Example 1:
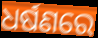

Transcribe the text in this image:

ଧର୍ଷଣରେ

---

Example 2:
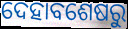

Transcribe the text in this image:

ଦେହାବଶେଷରୁ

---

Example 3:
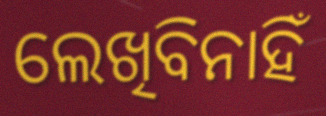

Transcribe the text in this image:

ଲେଖିବିନାହିଁ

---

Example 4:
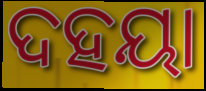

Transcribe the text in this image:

ଦହୟା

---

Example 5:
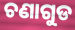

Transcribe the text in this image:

ଚଣାଗୁଡ